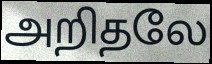
அறிதலே